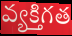
వ్యక్తిగత